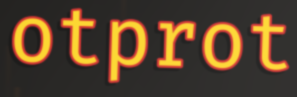
otprot